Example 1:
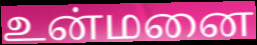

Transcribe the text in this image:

உன்மனை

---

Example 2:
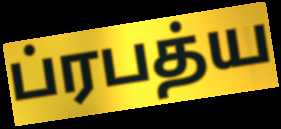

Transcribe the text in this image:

ப்ரபத்ய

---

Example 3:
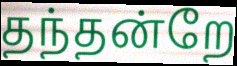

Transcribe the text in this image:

தந்தன்றே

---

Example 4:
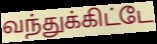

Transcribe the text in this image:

வந்துக்கிட்டே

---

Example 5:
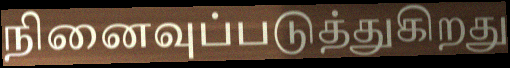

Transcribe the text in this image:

நினைவுப்படுத்துகிறது